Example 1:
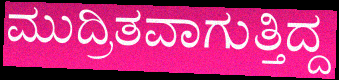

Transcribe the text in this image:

ಮುದ್ರಿತವಾಗುತ್ತಿದ್ದ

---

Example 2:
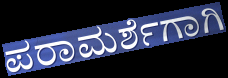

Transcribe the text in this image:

ಪರಾಮರ್ಶೆಗಾಗಿ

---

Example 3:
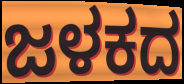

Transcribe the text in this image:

ಜಳಕದ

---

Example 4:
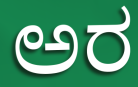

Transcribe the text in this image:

ಅರ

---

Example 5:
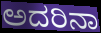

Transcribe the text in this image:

ಅದರಿನಾ